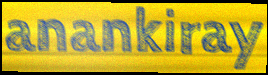
anankiray